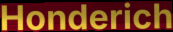
Honderich